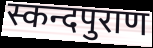
स्कन्दपुराण